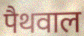
पैथवाल